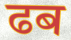
ढब